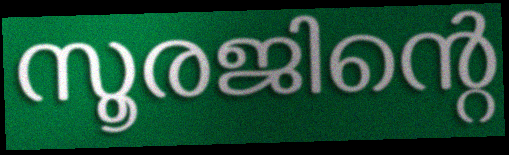
സൂരജിന്റെ